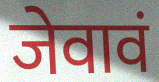
जेवावं